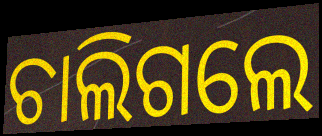
ଚାଲିଗଲେ